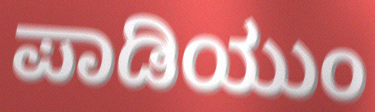
ಪಾಡಿಯುಂ